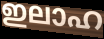
ഇലാഹ